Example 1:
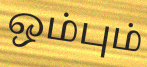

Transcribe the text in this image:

ஒம்பும்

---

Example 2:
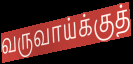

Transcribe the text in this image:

வருவாய்க்குத்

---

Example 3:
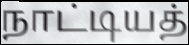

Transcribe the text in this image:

நாட்டியத்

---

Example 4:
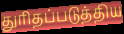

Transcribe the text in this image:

துரிதப்படுத்திய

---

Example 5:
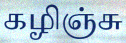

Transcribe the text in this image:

கழிஞ்சு